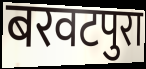
बरवटपुरा